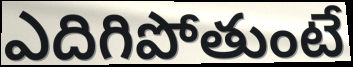
ఎదిగిపోతుంటే